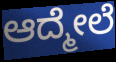
ಆದ್ಮೇಲೆ